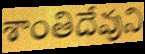
శాంతిదేవుని